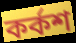
কৰ্কশ